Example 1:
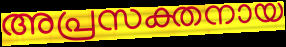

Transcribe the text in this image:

അപ്രസക്തനായ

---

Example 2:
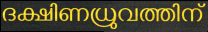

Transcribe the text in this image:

ദക്ഷിണധ്രുവത്തിന്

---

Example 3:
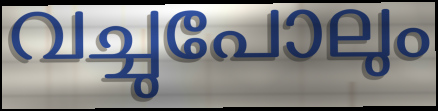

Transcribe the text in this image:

വച്ചുപോലും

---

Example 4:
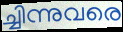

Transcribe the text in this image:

ച്ചിന്നുവരെ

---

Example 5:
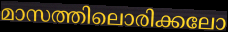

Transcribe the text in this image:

മാസത്തിലൊരിക്കലോ